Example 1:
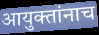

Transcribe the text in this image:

आयुक्तांनाच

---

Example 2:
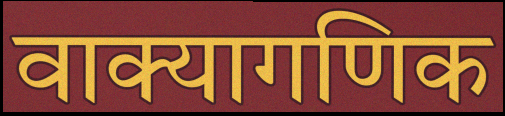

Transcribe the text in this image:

वाक्यागणिक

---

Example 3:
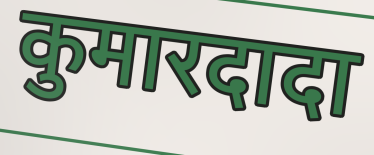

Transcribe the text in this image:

कुमारदादा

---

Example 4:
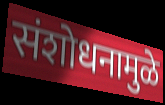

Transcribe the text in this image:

संशोधनामुळे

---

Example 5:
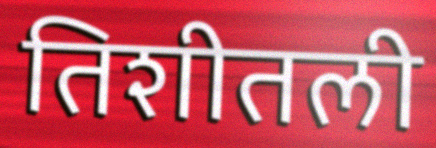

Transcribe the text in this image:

तिशीतली